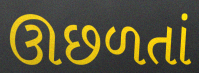
ઊછળતાં